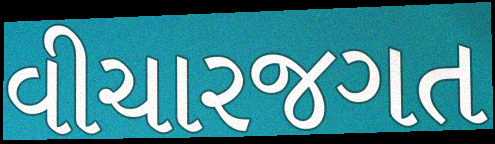
વીચારજગત